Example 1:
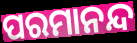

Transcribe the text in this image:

ପରମାନନ୍ଦ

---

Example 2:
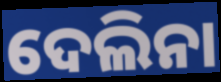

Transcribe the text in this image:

ଦେଲିନା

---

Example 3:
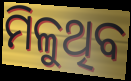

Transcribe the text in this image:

ମିଳୁଥିବ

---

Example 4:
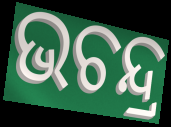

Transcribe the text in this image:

ଭଚନ୍ଦ୍ର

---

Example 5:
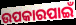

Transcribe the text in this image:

ଉପକାରପାଇଁ